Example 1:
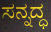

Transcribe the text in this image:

ಸನ್ನದ್ಧ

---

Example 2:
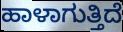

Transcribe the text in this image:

ಹಾಳಾಗುತ್ತಿದೆ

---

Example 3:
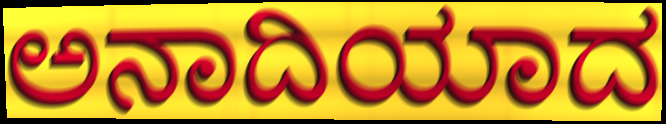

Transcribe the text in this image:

ಅನಾದಿಯಾದ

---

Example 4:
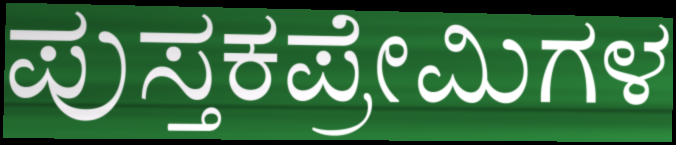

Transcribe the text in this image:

ಪುಸ್ತಕಪ್ರೇಮಿಗಳ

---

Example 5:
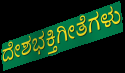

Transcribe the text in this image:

ದೇಶಭಕ್ತಿಗೀತೆಗಳು